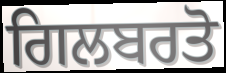
ਗਿਲਬਰਤੋ